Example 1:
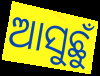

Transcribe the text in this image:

ଆସୁଛୁଁ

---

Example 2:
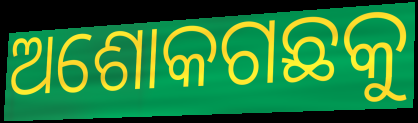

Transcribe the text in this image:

ଅଶୋକଗଛକୁ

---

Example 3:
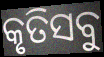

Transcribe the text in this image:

କୃତିସବୁ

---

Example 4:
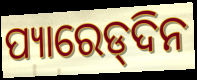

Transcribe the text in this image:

ପ୍ୟାରେଡ୍‌ଦିନ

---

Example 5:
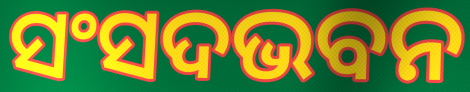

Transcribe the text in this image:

ସଂସଦଭବନ